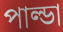
পাল্ডা